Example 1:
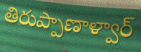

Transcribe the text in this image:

తిరుప్పాణాళ్వార్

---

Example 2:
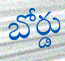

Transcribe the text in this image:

బోర్డు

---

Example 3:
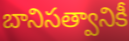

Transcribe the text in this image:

బానిసత్వానికీ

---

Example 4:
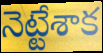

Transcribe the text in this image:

నెట్టేశాక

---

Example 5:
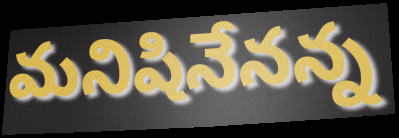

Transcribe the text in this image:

మనిషినేనన్న